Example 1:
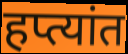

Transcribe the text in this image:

हप्त्यांत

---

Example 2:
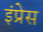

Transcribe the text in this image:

इंप्रेस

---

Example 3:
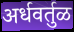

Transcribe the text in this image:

अर्धवर्तुळ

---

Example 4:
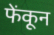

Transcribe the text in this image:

फेंकून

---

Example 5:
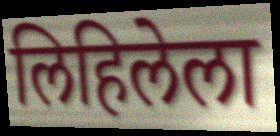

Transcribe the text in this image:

लिहिलेला